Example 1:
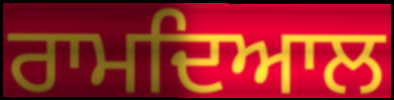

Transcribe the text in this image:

ਰਾਮਦਿਆਲ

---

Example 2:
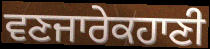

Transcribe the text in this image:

ਵਣਜਾਰੇਕਹਾਣੀ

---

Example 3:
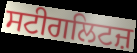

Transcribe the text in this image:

ਸਟੀਗਲਿਟਜ਼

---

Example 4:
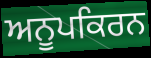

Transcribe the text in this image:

ਅਨੂਪਕਿਰਨ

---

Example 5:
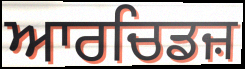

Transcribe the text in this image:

ਆਰਚਿਡਜ਼